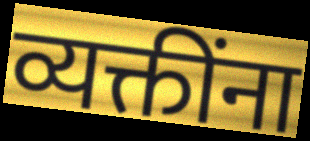
व्यक्तींना